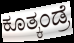
ಕೂತ್ಕಂಡ್ರೆ